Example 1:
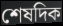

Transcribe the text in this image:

শেষদিক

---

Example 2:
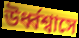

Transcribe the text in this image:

উর্ধ্বশ্বাসে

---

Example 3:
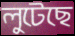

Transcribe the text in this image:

লুটেছে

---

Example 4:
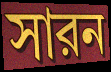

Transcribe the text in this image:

সারন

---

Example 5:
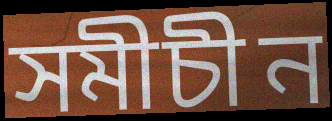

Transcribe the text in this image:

সমীচীন